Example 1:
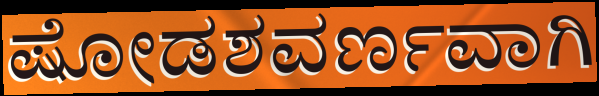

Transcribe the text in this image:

ಷೋಡಶವರ್ಣವಾಗಿ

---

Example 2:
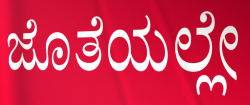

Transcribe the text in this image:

ಜೊತೆಯಲ್ಲೇ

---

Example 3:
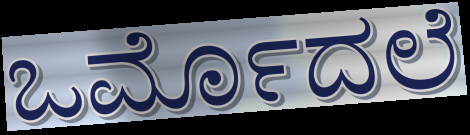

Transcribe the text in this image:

ಒರ್ಮೊದಲೆ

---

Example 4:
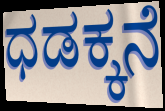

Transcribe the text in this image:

ಧಡಕ್ಕನೆ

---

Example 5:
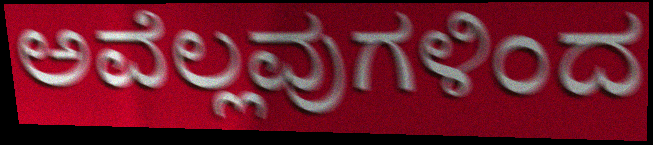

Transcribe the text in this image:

ಅವೆಲ್ಲವುಗಳಿಂದ